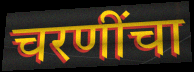
चरणींचा